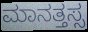
ಮಾನತ್ತಸ್ಸ